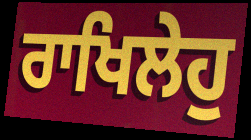
ਰਾਖਿਲੇਹੁ